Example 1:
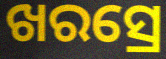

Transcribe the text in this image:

ଖରସ୍ରେ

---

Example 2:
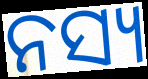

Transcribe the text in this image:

ନସ୍ୟ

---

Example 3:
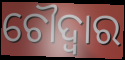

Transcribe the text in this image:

ଚୌଦ୍ଵାର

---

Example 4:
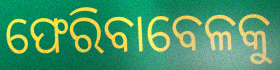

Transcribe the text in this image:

ଫେରିବାବେଳକୁ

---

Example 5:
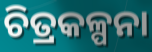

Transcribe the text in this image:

ଚିତ୍ରକଳ୍ପନା